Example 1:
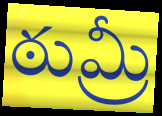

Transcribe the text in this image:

ఠుమ్రీ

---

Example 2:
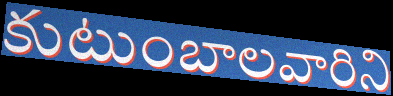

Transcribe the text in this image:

కుటుంబాలవారిని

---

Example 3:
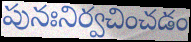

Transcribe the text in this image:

పునఃనిర్వచించడం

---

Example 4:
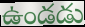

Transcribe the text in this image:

ఉండడు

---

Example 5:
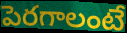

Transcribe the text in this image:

పెరగాలంటే